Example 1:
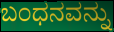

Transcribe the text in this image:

ಬಂಧನವನ್ನು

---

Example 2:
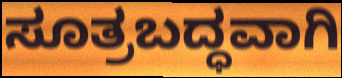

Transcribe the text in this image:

ಸೂತ್ರಬದ್ಧವಾಗಿ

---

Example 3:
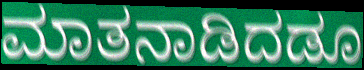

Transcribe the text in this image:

ಮಾತನಾಡಿದಡೂ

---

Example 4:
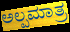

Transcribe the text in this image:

ಅಲ್ಪಮಾತ್ರ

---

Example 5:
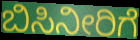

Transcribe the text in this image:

ಬಿಸಿನೀರಿಗೆ